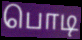
பொடி